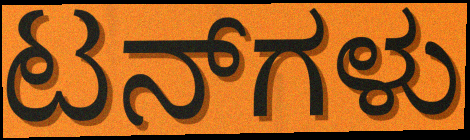
ಟನ್‌ಗಳು